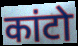
कांटो